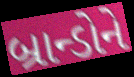
બ્રાન્ડોને